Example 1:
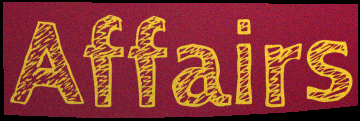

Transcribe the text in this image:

Affairs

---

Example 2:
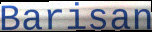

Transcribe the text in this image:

Barisan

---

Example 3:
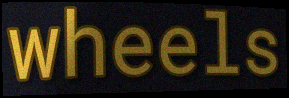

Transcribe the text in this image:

wheels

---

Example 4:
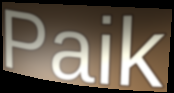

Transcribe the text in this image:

Paik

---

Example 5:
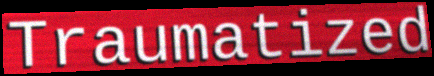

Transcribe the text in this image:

Traumatized